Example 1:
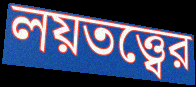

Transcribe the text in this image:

লয়তত্ত্বের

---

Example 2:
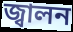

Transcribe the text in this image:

জ্বালন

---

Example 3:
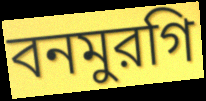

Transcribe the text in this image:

বনমুরগি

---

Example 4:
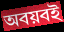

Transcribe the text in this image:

অবয়বই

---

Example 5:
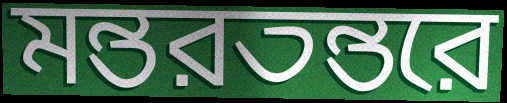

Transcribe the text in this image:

মন্তরতন্তরে